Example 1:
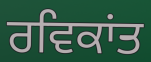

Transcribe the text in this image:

ਰਵਿਕਾਂਤ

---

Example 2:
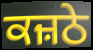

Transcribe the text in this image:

ਕਜ਼ਠੇ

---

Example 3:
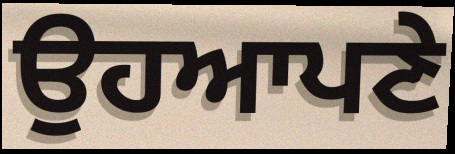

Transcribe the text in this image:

ਉਹਆਪਣੇ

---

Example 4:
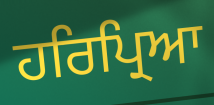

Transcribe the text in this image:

ਹਰਿਪ੍ਰਿਆ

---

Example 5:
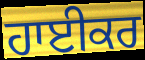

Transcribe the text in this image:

ਹਾਈਕਰ